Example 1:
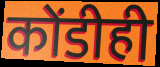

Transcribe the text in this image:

कोंडीही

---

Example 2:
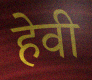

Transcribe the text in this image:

हेवी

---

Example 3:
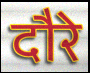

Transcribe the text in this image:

दौरे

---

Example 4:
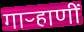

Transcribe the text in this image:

गाऱ्हाणीं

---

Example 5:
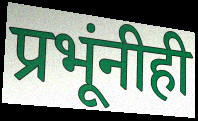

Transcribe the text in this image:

प्रभूंनीही